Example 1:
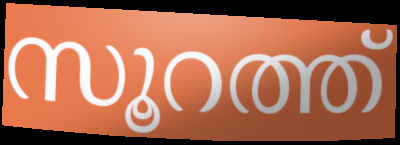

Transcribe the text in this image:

സൂറത്ത്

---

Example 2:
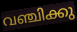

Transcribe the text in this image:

വഞ്ചിക്കു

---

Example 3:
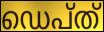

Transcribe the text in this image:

ഡെപ്ത്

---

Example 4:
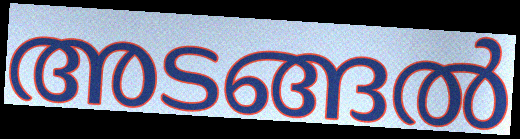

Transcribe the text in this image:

അടങ്ങൽ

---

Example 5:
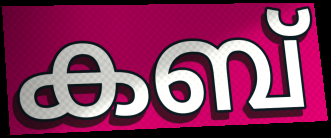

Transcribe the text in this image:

കബ്